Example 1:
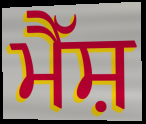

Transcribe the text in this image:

ਮੈੱਸ਼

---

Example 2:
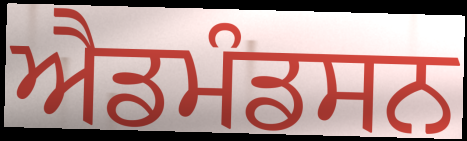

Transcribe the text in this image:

ਐਡਮੰਡਸਨ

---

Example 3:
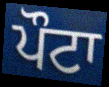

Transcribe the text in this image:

ਪੌਟਾ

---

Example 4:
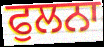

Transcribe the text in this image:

ਫੁਲਨਾ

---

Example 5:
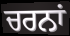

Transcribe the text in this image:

ਚਰਨਾਂ